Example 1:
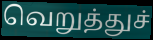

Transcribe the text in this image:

வெறுத்துச்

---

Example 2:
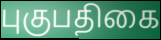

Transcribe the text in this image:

புகுபதிகை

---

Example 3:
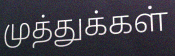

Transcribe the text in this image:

முத்துக்கள்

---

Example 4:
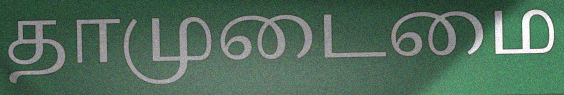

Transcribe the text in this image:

தாமுடைமை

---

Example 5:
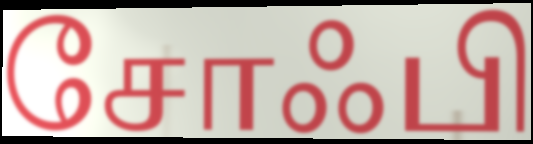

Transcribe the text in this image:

சோஃபி